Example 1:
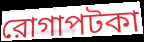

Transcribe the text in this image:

রোগাপটকা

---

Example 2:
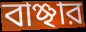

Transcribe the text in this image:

বাঞ্ছার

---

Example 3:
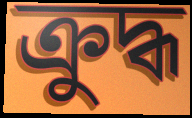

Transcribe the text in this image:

ক্রুদ্ধ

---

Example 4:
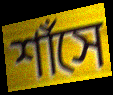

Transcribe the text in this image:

শাঁসে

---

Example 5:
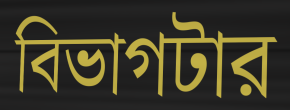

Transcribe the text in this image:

বিভাগটার